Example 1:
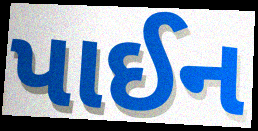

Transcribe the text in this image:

પાઈન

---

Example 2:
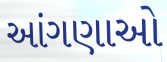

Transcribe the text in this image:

આંગણાઓ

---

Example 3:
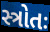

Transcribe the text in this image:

સ્ત્રોતઃ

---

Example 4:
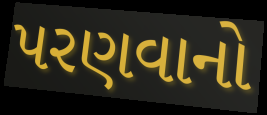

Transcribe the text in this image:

પરણવાનો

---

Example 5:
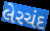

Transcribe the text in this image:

લેરચંદ